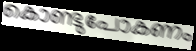
കൊണ്ടുപോകണം